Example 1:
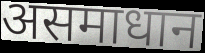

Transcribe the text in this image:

असमाधान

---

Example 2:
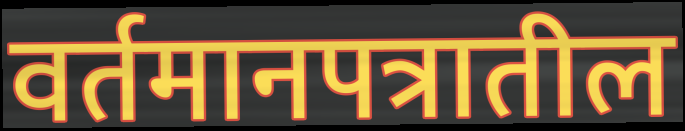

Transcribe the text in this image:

वर्तमानपत्रातील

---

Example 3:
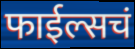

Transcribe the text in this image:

फाईल्सचं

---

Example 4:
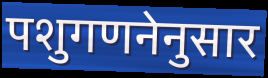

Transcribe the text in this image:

पशुगणनेनुसार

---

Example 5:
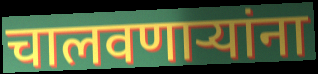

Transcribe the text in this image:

चालवणार्‍यांना